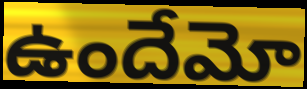
ఉందేమో